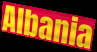
Albania